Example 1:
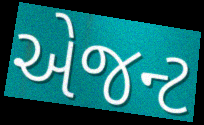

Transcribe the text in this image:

એજન્ટ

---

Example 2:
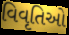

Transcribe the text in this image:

વિવૃતિઓ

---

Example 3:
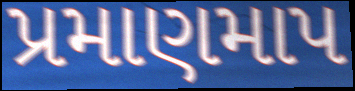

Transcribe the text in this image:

પ્રમાણમાપ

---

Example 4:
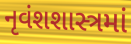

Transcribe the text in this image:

નૃવંશશાસ્ત્રમાં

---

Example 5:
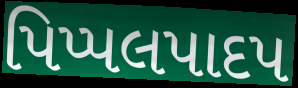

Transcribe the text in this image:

પિપ્પલપાદપ